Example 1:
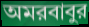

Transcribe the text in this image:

অমরবাবুর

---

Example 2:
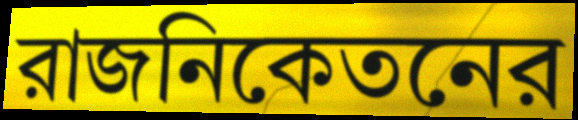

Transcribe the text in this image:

রাজনিকেতনের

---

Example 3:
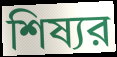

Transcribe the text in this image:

শিষ্যর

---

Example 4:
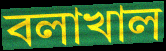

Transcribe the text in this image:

বলাখাল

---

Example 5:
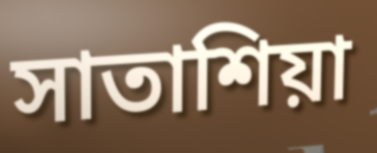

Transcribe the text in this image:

সাতাশিয়া